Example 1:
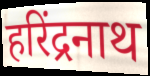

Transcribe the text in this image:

हरिंद्रनाथ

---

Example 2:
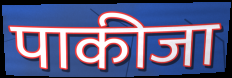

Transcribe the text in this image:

पाकीजा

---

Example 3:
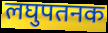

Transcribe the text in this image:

लघुपतनक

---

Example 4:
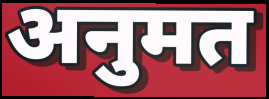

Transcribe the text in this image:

अनुमत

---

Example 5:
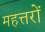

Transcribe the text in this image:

महत्तरों